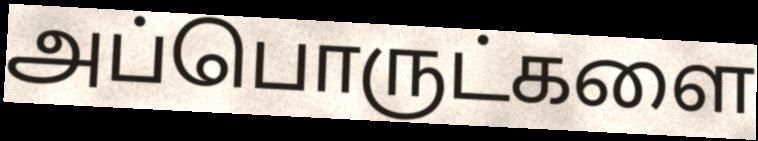
அப்பொருட்களை